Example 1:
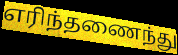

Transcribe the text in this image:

எரிந்தணைந்து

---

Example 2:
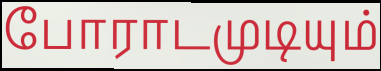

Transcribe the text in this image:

போராடமுடியும்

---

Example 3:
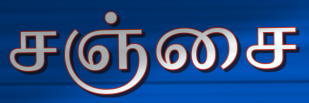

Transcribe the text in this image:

சஞ்சை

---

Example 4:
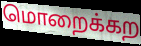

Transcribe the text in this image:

மொறைக்கற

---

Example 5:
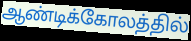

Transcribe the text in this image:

ஆண்டிக்கோலத்தில்